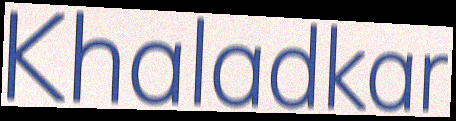
Khaladkar